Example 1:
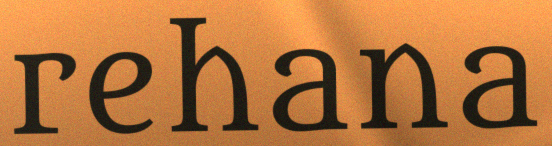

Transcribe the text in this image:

rehana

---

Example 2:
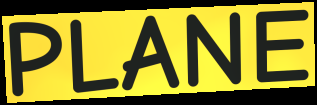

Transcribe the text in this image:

PLANE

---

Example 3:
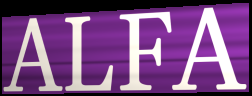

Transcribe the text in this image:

ALFA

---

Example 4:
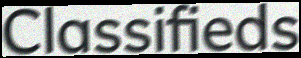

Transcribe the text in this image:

Classifieds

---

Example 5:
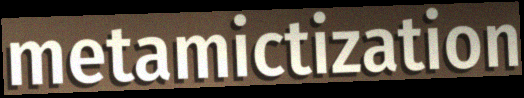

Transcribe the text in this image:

metamictization